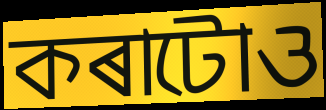
কৰাটোও